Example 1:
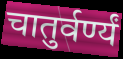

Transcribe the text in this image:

चातुर्वर्ण्यं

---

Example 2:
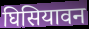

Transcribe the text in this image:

घिसियावन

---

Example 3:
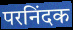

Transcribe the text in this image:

परनिंदक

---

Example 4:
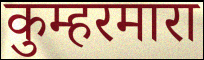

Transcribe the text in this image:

कुम्हरमारा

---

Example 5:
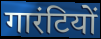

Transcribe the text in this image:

गारंटियों